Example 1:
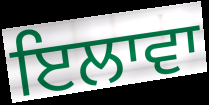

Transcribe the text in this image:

ਇਲਾਵਾ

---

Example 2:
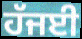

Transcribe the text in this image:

ਹੱਜਈ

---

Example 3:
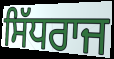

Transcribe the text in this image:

ਸਿੱਧਰਾਜ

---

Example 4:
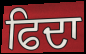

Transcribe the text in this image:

ਫਿਦਾ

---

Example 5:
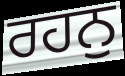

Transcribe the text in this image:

ਰਹਨੁ